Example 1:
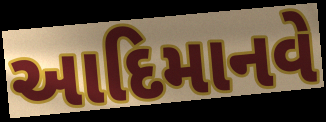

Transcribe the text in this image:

આદિમાનવે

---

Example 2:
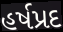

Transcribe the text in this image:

હર્ષપ્રદ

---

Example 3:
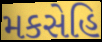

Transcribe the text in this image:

મકસેહિ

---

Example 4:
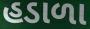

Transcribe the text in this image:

હડાળા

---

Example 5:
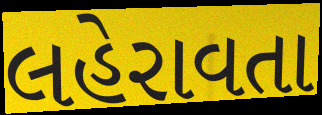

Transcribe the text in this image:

લહેરાવતા